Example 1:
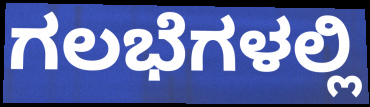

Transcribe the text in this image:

ಗಲಭೆಗಳಲ್ಲಿ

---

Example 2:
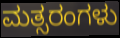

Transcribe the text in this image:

ಮತ್ಸರಂಗಳು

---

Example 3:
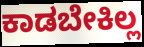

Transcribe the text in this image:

ಕಾಡಬೇಕಿಲ್ಲ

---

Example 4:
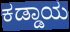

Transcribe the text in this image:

ಕಡ್ಡಾಯ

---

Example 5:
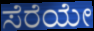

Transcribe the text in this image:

ಸೆರೆಯೇ